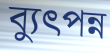
ব্যুৎপন্ন